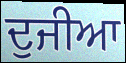
ਦੁਜੀਆ